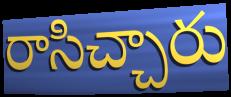
రాసిచ్చారు